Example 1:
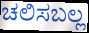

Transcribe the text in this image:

ಚಲಿಸಬಲ್ಲ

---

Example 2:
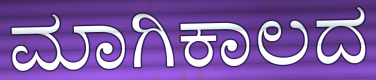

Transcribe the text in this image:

ಮಾಗಿಕಾಲದ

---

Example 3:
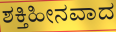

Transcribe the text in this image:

ಶಕ್ತಿಹೀನವಾದ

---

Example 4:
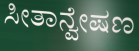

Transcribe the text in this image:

ಸೀತಾನ್ವೇಷಣ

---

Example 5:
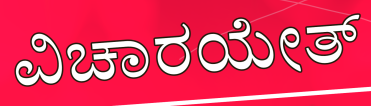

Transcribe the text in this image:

ವಿಚಾರಯೇತ್